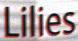
Lilies